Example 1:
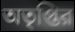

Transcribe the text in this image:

অতৃপ্তির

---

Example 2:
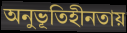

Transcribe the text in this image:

অনুভূতিহীনতায়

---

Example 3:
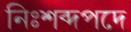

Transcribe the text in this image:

নিঃশব্দপদে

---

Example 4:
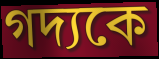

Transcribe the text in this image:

গদ্যকে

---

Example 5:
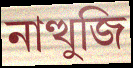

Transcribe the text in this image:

নাত্থুজি